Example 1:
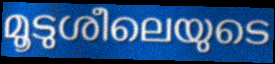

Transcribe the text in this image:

മൂടുശീലെയുടെ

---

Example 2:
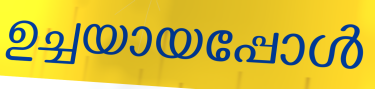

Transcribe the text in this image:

ഉച്ചയായപ്പോൾ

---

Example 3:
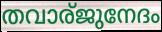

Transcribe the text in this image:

തവാര്ജുനേദം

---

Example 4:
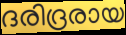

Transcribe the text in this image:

ദരിദ്രരായ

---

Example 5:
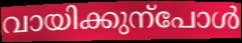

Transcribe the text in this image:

വായിക്കുന്പോൾ